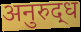
अनुरुद्ध